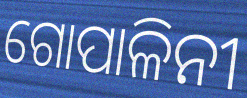
ଗୋପାଳିନୀ